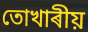
তোখাৰীয়